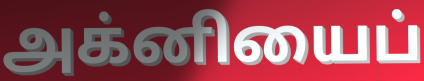
அக்னியைப்